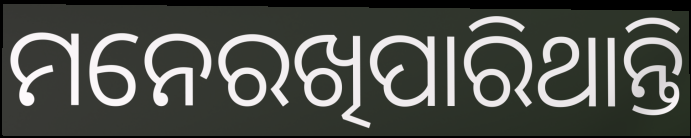
ମନେରଖିପାରିଥାନ୍ତି